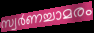
സ്വർണച്ചാമരം